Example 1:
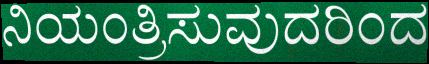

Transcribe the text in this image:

ನಿಯಂತ್ರಿಸುವುದರಿಂದ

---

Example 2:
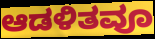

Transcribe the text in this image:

ಆಡಳಿತವೂ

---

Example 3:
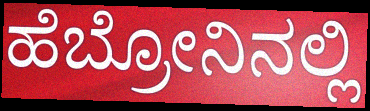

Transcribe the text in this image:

ಹೆಬ್ರೋನಿನಲ್ಲಿ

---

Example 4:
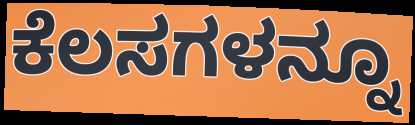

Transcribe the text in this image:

ಕೆಲಸಗಳನ್ನೂ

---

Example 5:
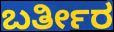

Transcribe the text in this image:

ಬರ್ತೀರ